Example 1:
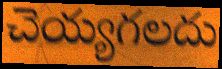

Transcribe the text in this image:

చెయ్యగలదు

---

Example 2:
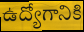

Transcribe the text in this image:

ఉద్యోగానికి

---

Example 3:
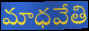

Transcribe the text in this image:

మాధవేతి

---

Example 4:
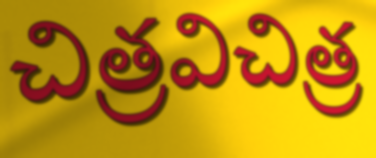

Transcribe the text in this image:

చిత్రవిచిత్ర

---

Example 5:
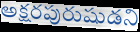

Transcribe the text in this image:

అక్షరపురుషుడని